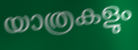
യാത്രകളും